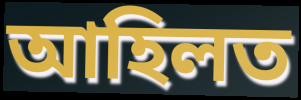
আহিলত